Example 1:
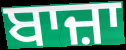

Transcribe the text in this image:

ਬਾਜ਼ਾ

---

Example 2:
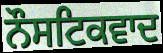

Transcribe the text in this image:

ਨੌਸਟਿਕਵਾਦ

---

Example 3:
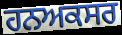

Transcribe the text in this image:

ਹਨਅਕਸਰ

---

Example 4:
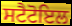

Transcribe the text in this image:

ਸਟੈਟੋਇਲ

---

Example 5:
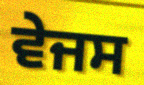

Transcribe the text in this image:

ਵੇਜਸ